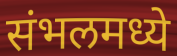
संभलमध्ये